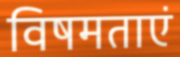
विषमताएं